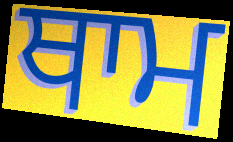
ਥਾਮ